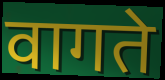
वागते